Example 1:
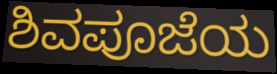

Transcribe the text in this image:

ಶಿವಪೂಜೆಯ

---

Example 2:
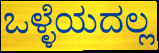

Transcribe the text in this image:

ಒಳ್ಳೆಯದಲ್ಲ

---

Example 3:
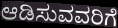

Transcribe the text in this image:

ಆಡಿಸುವವರಿಗೆ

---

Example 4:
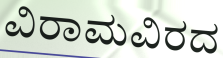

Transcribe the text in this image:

ವಿರಾಮವಿರದ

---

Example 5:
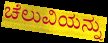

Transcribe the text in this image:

ಚೆಲುವಿಯನ್ನು